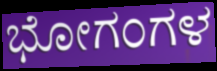
ಭೋಗಂಗಳ